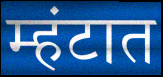
म्हंटात